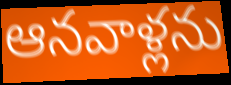
ఆనవాళ్లను